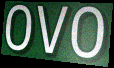
OVO